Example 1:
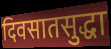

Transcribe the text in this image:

दिवसातसुद्धा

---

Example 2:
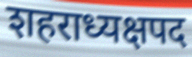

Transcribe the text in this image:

शहराध्यक्षपद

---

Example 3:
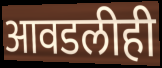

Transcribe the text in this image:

आवडलीही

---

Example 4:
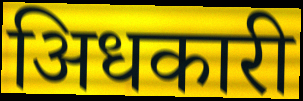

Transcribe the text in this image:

अिधकारी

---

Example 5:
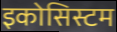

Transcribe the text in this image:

इकोसिस्टम